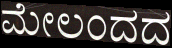
ಮೇಲಂದದ